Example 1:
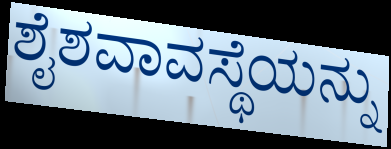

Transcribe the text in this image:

ಶೈಶವಾವಸ್ಥೆಯನ್ನು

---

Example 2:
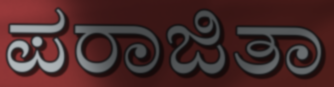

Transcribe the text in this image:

ಪರಾಜಿತಾ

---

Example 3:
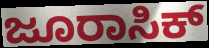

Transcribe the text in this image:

ಜೂರಾಸಿಕ್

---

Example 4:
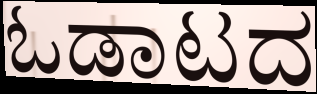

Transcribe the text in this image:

ಓಡಾಟದ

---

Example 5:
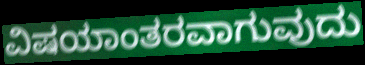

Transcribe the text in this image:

ವಿಷಯಾಂತರವಾಗುವುದು